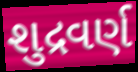
શુદ્રવર્ણ